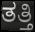
ತತ್ತಿ